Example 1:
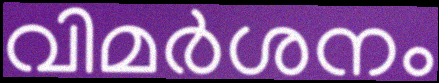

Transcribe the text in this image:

വിമർശനം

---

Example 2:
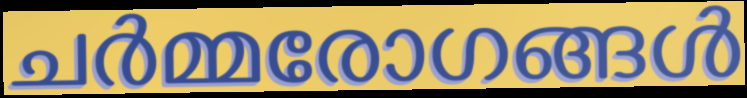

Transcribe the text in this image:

ചർമ്മരോഗങ്ങൾ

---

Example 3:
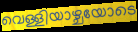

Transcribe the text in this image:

വെള്ളിയാഴ്ചയോടെ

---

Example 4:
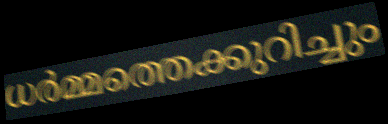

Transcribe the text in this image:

ധർമ്മത്തെക്കുറിച്ചും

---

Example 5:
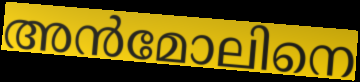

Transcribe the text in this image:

അൻമോലിനെ